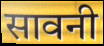
सावनी